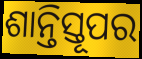
ଶାନ୍ତିସ୍ତୂପର